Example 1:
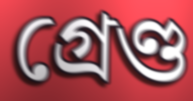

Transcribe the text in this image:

গ্ৰেণ্ড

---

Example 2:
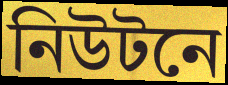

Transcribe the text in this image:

নিউটনে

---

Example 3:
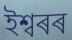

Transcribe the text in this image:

ইশ্বৰৰ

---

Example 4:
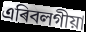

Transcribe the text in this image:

এৰিবলগীয়া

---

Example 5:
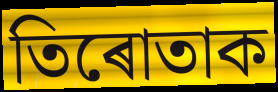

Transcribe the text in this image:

তিৰোতাক